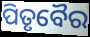
ପିତୃବୈର